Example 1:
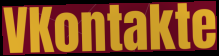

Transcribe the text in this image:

VKontakte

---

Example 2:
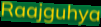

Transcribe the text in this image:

Raajguhya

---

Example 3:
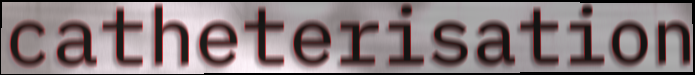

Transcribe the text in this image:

catheterisation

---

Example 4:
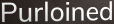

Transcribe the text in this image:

Purloined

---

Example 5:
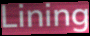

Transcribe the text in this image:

Lining